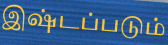
இஷ்டப்படும்